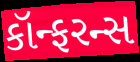
કૉન્ફરન્સ